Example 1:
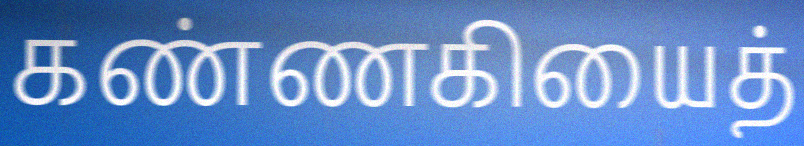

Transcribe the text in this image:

கண்ணகியைத்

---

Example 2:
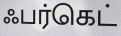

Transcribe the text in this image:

ஃபர்கெட்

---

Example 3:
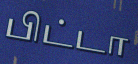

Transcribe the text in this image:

பிட்டா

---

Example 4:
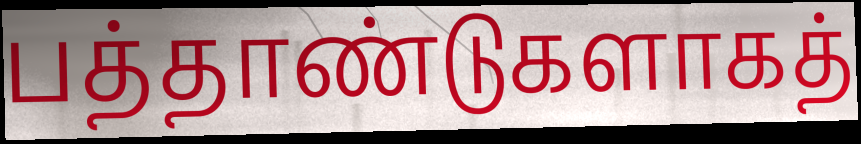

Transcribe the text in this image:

பத்தாண்டுகளாகத்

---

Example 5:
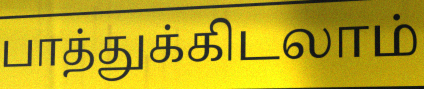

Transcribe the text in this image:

பாத்துக்கிடலாம்